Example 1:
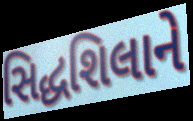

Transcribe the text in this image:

સિદ્ધશિલાને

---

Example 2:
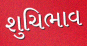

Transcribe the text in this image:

શુચિભાવ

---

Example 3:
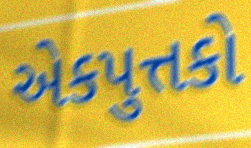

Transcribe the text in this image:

એકપુત્તકો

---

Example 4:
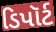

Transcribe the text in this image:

ડિપૉર્ટ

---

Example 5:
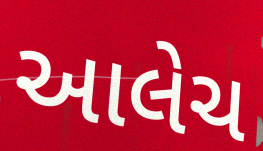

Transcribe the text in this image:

આલેચ